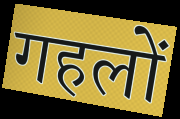
गहलों